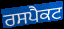
ਰਸਪੈਕਟ